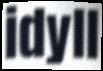
idyll